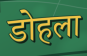
डोहला